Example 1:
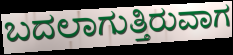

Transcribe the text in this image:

ಬದಲಾಗುತ್ತಿರುವಾಗ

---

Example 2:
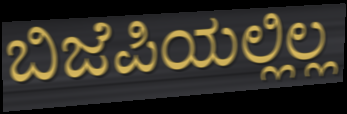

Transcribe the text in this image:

ಬಿಜೆಪಿಯಲ್ಲಿಲ್ಲ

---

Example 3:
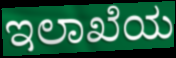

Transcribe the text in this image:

ಇಲಾಖೆಯ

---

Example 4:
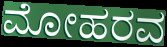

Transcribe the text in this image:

ಮೋಹರವ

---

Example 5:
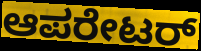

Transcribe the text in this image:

ಆಪರೇಟರ್